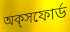
অক্‌সফোর্ড